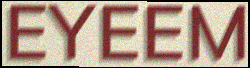
EYEEM